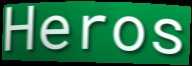
Heros